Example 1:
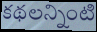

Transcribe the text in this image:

కథలన్నింటి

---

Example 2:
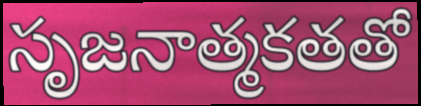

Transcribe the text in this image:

సృజనాత్మకతతో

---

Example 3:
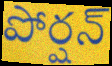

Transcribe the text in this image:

పోర్షన్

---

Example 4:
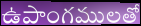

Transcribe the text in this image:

ఉపాంగములతో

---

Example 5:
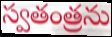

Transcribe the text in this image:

స్వతంత్రను